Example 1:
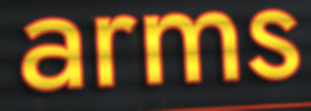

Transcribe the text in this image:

arms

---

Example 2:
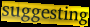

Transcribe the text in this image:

suggesting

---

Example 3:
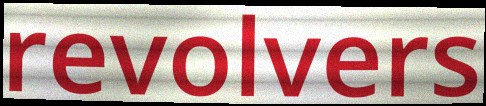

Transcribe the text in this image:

revolvers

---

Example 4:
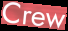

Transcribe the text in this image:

Crew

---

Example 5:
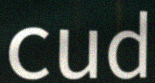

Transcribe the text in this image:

cud